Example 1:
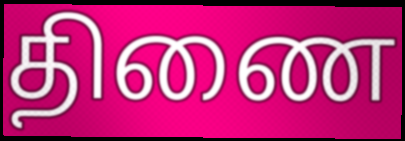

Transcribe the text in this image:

திணை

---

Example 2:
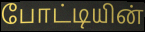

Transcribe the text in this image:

போட்டியின்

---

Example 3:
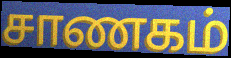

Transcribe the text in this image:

சாணகம்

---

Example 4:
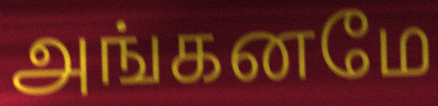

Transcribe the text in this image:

அங்கனமே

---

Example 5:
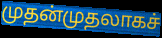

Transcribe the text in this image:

முதன்முதலாகச்